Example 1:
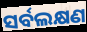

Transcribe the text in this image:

ସର୍ବଲକ୍ଷଣ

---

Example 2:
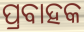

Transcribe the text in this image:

ପ୍ରବାହକ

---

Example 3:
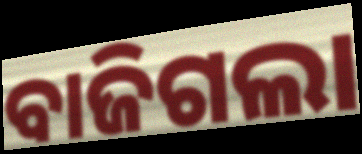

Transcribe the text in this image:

ବାଜିଗଲା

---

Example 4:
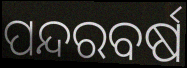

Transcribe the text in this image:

ପନ୍ଦରବର୍ଷ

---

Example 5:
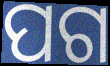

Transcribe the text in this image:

ପଗ